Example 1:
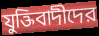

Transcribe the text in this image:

যুক্তিবাদীদের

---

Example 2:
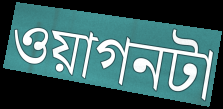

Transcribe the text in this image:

ওয়াগনটা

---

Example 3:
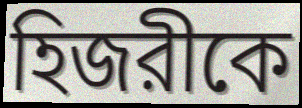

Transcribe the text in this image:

হিজরীকে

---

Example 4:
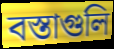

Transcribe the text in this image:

বস্তাগুলি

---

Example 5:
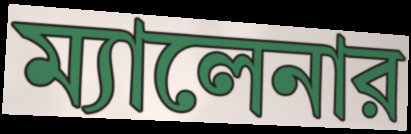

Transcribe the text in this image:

ম্যালেনার